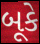
બૂકે